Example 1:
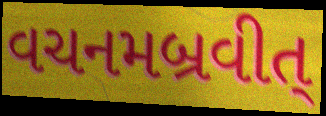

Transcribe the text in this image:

વચનમબ્રવીત્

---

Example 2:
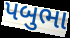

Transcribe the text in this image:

પબુભા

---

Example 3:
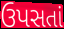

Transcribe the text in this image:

ઉપસતાં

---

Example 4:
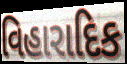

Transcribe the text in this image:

વિહારાદિક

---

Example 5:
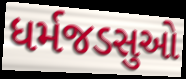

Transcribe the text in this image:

ધર્મજડસુઓ